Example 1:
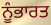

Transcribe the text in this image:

ਨੂੰਭਾਰਤ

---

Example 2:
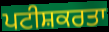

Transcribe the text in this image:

ਪਟੀਸ਼ਕਰਤਾ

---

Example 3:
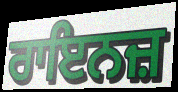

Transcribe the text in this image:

ਰਾਇਨਜ਼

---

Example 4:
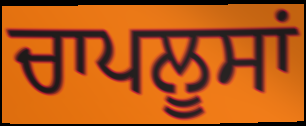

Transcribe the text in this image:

ਚਾਪਲੂਸਾਂ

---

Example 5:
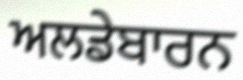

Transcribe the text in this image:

ਅਲਡੇਬਾਰਨ